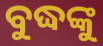
ବୁଦ୍ଧଙ୍କୁ